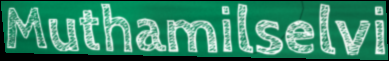
Muthamilselvi